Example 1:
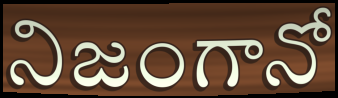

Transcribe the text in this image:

నిజంగానో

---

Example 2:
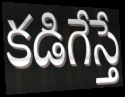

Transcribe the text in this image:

కడిగేస్తే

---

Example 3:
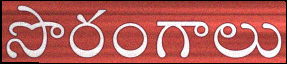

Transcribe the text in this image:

సొరంగాలు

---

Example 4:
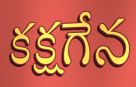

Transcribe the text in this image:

కక్షగేన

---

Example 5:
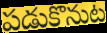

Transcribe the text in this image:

పడుకొనుట